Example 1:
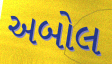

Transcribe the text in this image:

અબોલ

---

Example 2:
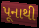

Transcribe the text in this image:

પૂનાથી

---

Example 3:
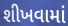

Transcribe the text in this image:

શીખવામાં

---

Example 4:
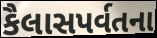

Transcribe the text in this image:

કૈલાસપર્વતના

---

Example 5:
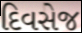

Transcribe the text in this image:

દિવસેજ